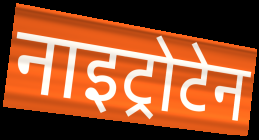
नाइट्रोटेन